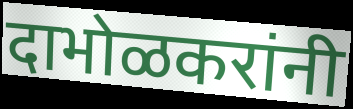
दाभोळकरांनी